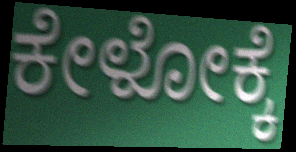
ಕೇಳೋಕ್ಕೆ